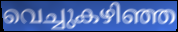
വെച്ചുകഴിഞ്ഞ